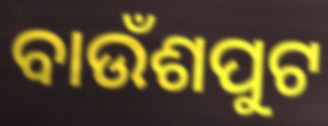
ବାଉଁଶପୁଟ